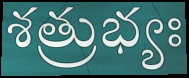
శత్రుభ్యః